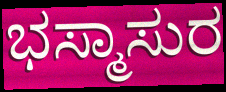
ಭಸ್ಮಾಸುರ